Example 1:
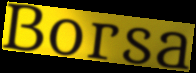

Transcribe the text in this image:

Borsa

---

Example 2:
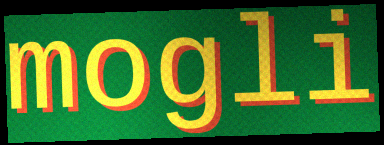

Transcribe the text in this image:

mogli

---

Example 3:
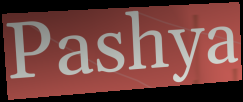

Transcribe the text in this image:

Pashya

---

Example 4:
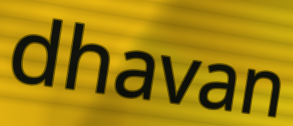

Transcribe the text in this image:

dhavan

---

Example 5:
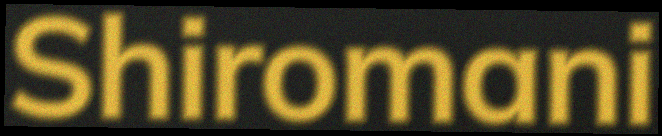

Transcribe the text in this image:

Shiromani